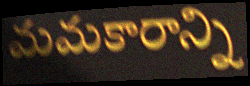
మమకారాన్ని